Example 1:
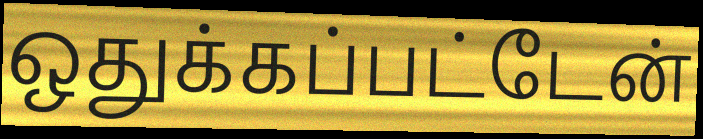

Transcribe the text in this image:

ஒதுக்கப்பட்டேன்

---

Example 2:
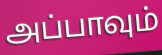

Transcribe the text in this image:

அப்பாவும்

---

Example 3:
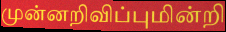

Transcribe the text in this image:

முன்னறிவிப்புமின்றி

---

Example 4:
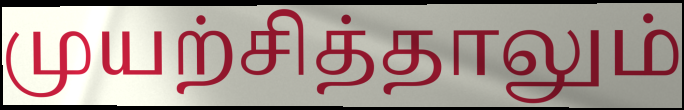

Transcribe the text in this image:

முயற்சித்தாலும்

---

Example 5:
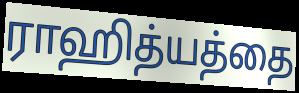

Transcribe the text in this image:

ராஹித்யத்தை